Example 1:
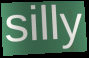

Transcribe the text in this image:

silly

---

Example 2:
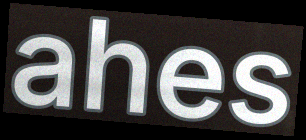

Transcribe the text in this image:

ahes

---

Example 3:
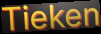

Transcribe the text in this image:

Tieken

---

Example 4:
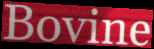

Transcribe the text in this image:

Bovine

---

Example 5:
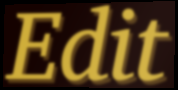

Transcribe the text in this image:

Edit